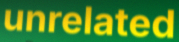
unrelated